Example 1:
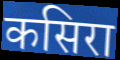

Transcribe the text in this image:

कसिरा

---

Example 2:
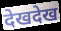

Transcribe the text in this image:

देखदेख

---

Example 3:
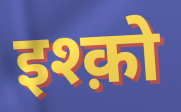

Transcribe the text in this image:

इश्क़ो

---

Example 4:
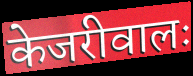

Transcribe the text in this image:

केजरीवालः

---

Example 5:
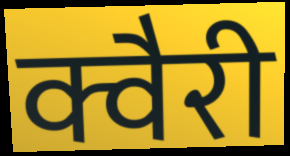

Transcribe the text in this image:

क्वैरी